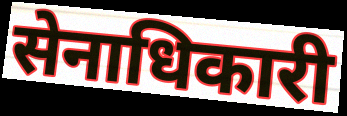
सेनाधिकारी